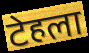
टेहला